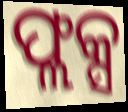
ଫ୍ଲକ୍ସ